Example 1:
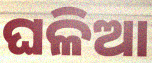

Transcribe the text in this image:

ଘଳିଆ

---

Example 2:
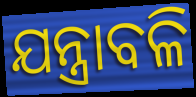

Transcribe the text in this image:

ଯନ୍ତ୍ରାବଳି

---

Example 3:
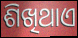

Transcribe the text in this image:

ଶିଖିଥାଏ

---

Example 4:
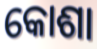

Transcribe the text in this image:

କୋଶା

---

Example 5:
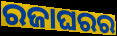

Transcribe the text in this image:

ରଜାଘରର